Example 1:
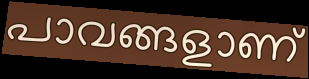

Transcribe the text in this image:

പാവങ്ങളാണ്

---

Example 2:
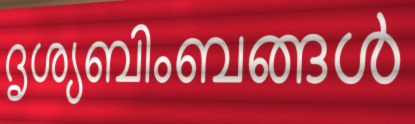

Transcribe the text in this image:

ദൃശ്യബിംബങ്ങൾ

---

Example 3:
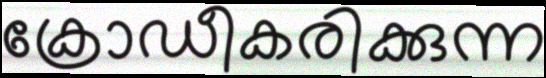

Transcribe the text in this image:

ക്രോഡീകരിക്കുന്ന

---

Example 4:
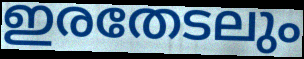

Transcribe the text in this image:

ഇരതേടലും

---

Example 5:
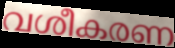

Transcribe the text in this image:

വശീകരണ